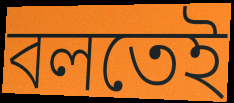
বলতেই